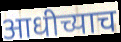
आधीच्याच